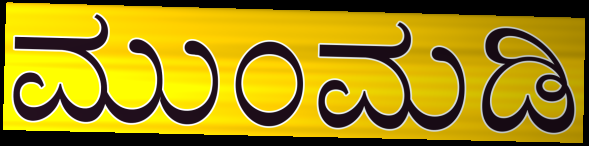
ಮುಂಮಡಿ